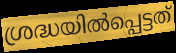
ശ്രദ്ധയിൽപ്പെട്ടത്